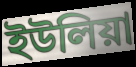
ইউলিয়া